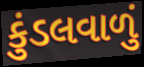
કુંડલવાળું